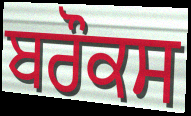
ਬਰੌਕਸ